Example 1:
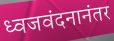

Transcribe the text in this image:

ध्वजवंदनानंतर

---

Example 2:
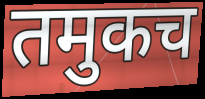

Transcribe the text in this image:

तमुकच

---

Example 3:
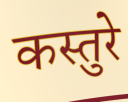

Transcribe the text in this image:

कस्तुरे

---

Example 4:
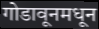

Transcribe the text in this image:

गोडावूनमधून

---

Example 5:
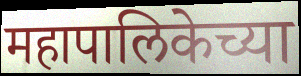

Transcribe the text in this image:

महापालिकेच्या